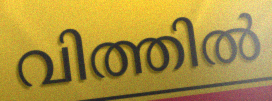
വിത്തിൽ